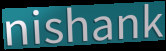
nishank